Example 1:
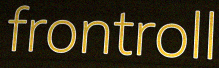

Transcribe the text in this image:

frontroll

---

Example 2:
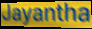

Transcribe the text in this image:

Jayantha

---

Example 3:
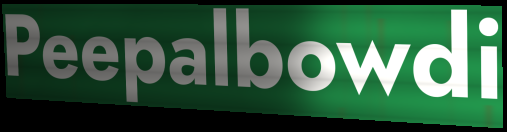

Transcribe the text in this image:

Peepalbowdi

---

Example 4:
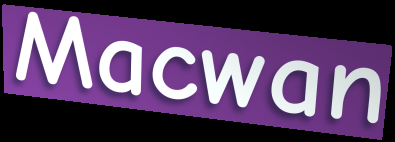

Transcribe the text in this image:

Macwan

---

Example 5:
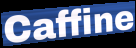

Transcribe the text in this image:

Caffine